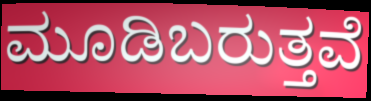
ಮೂಡಿಬರುತ್ತವೆ